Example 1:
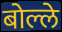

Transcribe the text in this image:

बोल्ले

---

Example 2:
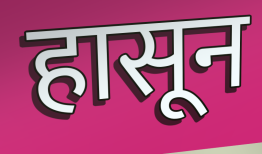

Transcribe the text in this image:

हासून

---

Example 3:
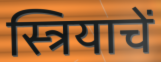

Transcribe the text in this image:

स्त्रियाचें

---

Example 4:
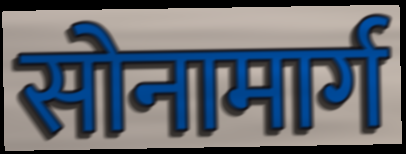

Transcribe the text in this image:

सोनामार्ग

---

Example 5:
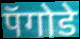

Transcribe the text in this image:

पॅगोडे